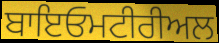
ਬਾਇਓਮਟੀਰੀਅਲ